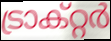
ട്രാക്റ്റർ